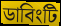
ডাবিংটি